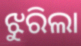
ଝୁରିଲା